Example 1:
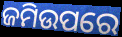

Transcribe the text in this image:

ଜମିଉପରେ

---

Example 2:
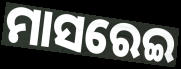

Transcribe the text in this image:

ମାସରେଇ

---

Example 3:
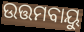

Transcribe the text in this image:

ଉତ୍ତମବାୟୁ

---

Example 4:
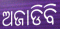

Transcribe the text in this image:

ଅଜାଡିବି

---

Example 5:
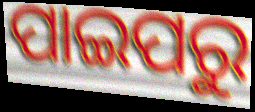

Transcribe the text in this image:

ପାଇପରୁ